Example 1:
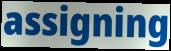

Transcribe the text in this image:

assigning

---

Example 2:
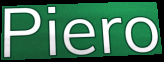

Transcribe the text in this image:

Piero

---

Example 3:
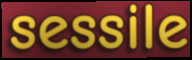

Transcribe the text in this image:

sessile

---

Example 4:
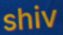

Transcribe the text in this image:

shiv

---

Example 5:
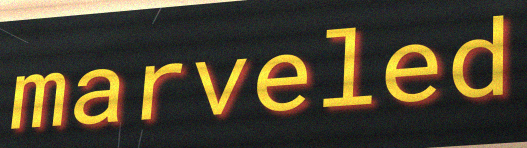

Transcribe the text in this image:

marveled